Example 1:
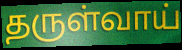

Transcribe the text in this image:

தருள்வாய்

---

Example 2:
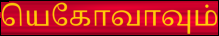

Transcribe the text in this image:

யெகோவாவும்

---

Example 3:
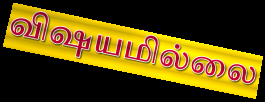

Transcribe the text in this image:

விஷயமில்லை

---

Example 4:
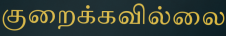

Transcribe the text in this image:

குறைக்கவில்லை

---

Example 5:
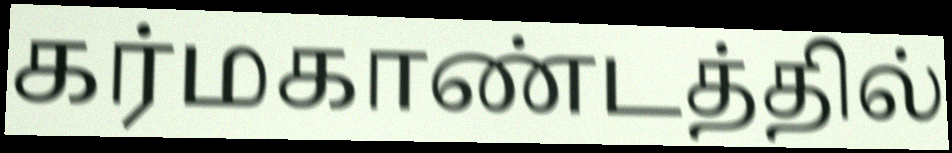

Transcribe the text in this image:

கர்மகாண்டத்தில்